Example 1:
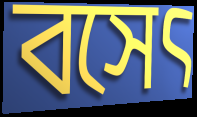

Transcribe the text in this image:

বসেৎ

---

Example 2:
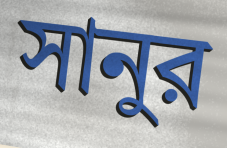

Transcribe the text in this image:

সানুর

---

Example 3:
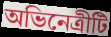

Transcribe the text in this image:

অভিনেত্রীটি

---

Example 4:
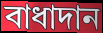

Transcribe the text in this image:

বাধাদান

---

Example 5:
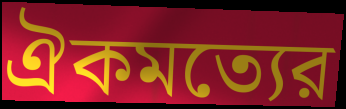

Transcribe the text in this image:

ঐকমত্যের